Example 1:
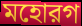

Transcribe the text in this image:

মহোরগ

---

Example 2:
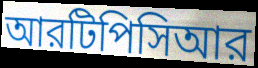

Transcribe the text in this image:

আরটিপিসিআর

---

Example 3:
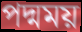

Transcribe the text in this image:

পদ্মময়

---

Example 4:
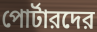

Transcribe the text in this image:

পোর্টারদের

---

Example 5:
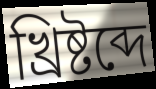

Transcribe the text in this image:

খ্রিষ্টব্দে